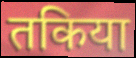
तकिया